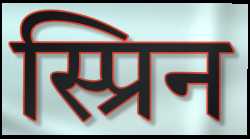
स्प्रिन